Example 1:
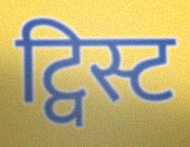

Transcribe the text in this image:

ट्विस्ट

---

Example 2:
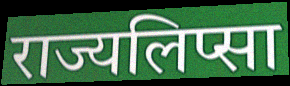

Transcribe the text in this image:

राज्यलिप्सा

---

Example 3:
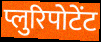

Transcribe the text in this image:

प्लुरिपोटेंट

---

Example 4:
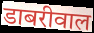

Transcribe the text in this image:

डाबरीवाल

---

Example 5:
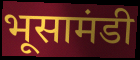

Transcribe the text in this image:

भूसामंडी